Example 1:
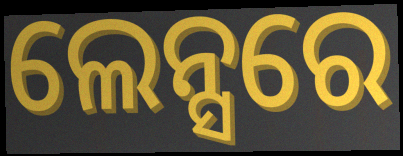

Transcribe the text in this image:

ଲେନ୍ସରେ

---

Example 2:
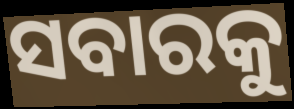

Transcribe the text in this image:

ସବାରକୁ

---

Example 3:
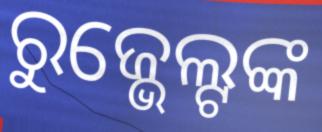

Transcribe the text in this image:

ରୁଜ୍ଭେଲ୍ଟଙ୍କ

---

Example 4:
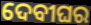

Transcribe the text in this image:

ଦେବୀଘର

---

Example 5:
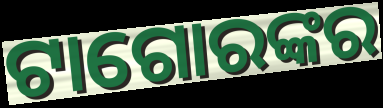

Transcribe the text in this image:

ଟାଗୋରଙ୍କର